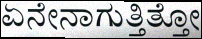
ಏನೇನಾಗುತ್ತಿತ್ತೋ